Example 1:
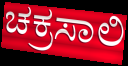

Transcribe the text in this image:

ಚಕ್ರಸಾಲಿ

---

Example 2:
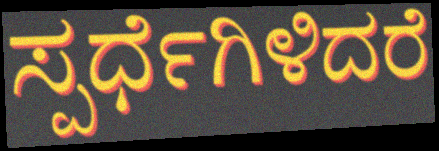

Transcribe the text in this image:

ಸ್ಪರ್ಧೆಗಿಳಿದರೆ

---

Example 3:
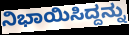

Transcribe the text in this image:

ನಿಭಾಯಿಸಿದ್ದನ್ನು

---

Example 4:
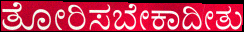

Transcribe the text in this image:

ತೋರಿಸಬೇಕಾದೀತು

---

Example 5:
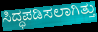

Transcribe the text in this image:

ಸಿದ್ಧಪಡಿಸಲಾಗಿತ್ತು